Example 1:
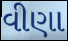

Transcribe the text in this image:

વીણા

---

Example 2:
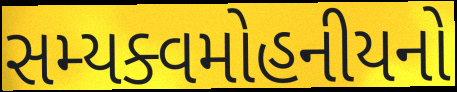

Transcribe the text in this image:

સમ્યક્વમોહનીયનો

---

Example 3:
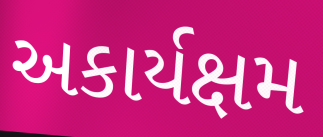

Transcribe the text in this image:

અકાર્યક્ષમ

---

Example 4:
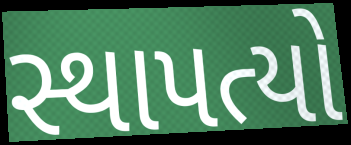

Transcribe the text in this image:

સ્થાપત્યો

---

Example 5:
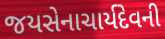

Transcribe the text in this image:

જયસેનાચાર્યદેવની